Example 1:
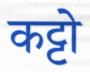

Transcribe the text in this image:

कट्टो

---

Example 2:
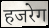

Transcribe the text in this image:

हजरेग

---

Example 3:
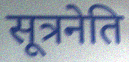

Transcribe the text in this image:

सूत्रनेति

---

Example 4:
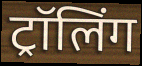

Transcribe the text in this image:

ट्रॉलिंग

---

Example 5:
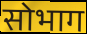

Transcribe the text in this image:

सोभाग